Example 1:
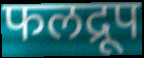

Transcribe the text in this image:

फलद्रूप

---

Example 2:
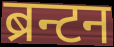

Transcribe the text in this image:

ब्रन्टन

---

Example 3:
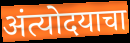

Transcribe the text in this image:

अंत्योदयाचा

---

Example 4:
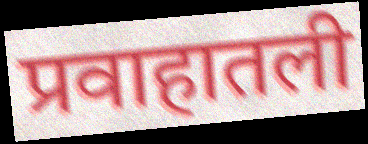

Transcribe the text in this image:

प्रवाहातली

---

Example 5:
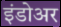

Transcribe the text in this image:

इंडोअर